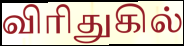
விரிதுகில்